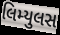
લિમ્યુલસ